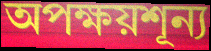
অপক্ষয়শূন্য